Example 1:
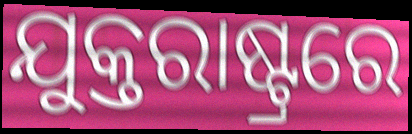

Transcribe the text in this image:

ଯୁକ୍ତରାଷ୍ଟ୍ରରେ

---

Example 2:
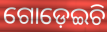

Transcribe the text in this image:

ଗୋଡ଼େଇଚି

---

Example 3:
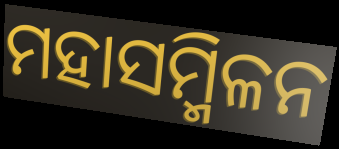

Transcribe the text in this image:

ମହାସମ୍ମିଳନ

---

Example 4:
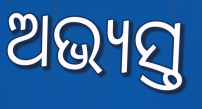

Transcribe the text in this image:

ଅଭ୍ୟସ୍ତ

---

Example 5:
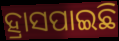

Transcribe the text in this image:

ହ୍ରାସପାଇଛି